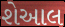
શેઆલ